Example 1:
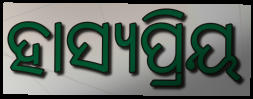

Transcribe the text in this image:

ହାସ୍ୟପ୍ରିୟ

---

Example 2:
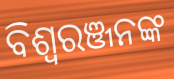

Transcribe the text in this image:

ବିଶ୍ବରଞ୍ଜନଙ୍କ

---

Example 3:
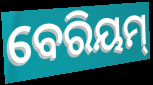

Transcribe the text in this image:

ବେରିୟମ୍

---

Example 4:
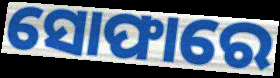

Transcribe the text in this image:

ସୋଫାରେ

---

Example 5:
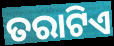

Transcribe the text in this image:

ତରାଟିଏ